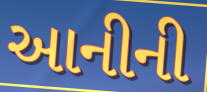
આનીની